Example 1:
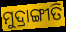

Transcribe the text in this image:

ମୁଦ୍ରାଙ୍ଗୀତି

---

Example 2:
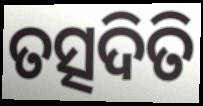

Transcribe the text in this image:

ତତ୍ସଦିତି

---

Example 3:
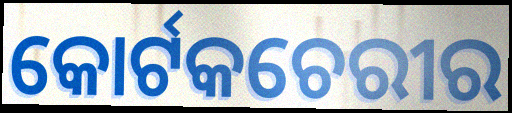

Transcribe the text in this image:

କୋର୍ଟକଚେରୀର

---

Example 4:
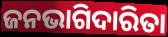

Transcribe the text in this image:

ଜନଭାଗିଦାରିତା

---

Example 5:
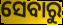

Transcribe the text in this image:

ସେବାରୁ